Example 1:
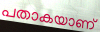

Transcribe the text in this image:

പതാകയാണ്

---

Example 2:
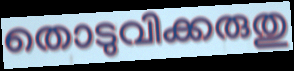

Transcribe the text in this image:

തൊടുവിക്കരുതു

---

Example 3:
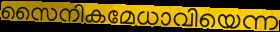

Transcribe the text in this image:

സൈനികമേധാവിയെന്ന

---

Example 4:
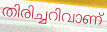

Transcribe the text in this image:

തിരിച്ചറിവാണ്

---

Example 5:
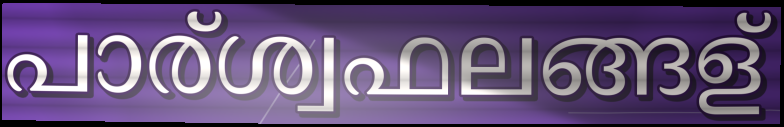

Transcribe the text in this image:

പാര്ശ്വഫലങ്ങള്